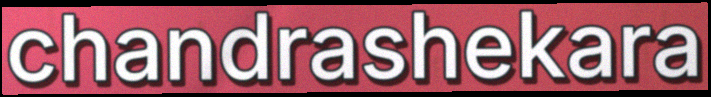
chandrashekara